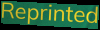
Reprinted